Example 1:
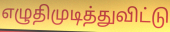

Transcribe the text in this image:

எழுதிமுடித்துவிட்டு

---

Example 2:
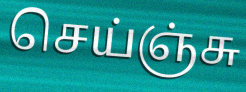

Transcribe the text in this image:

செய்ஞ்சு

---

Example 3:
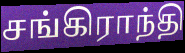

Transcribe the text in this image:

சங்கிராந்தி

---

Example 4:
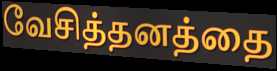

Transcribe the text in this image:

வேசித்தனத்தை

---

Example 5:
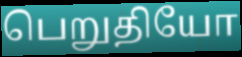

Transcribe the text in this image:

பெறுதியோ